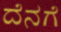
ದೆನಗೆ